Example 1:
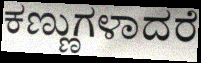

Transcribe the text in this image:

ಕಣ್ಣುಗಳಾದರೆ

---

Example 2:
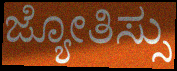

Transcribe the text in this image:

ಜ್ಯೋತಿಸ್ಸು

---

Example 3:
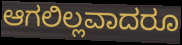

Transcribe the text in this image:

ಆಗಲಿಲ್ಲವಾದರೂ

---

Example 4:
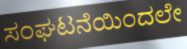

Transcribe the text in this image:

ಸಂಘಟನೆಯಿಂದಲೇ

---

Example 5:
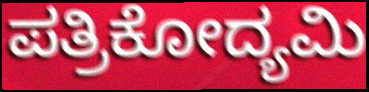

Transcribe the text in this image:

ಪತ್ರಿಕೋದ್ಯಮಿ